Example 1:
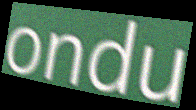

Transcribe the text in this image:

ondu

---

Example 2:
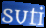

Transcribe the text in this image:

suti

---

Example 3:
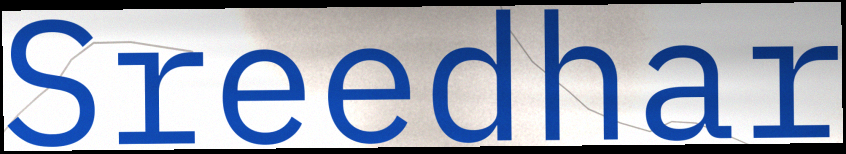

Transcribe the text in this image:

Sreedhar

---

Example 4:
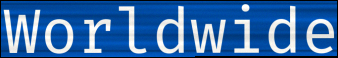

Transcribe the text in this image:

Worldwide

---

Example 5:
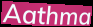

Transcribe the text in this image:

Aathma